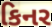
કિનર